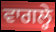
ਵਾਗਲ੍ਹੇ